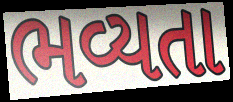
ભવ્યતા